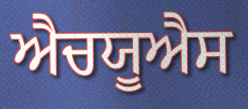
ਐਚਯੂਐਸ